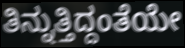
ತಿನ್ನುತ್ತಿದ್ದಂತೆಯೇ